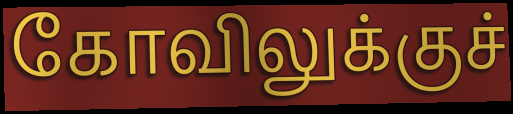
கோவிலுக்குச்